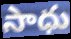
సాధు